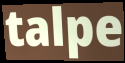
talpe